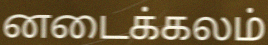
னடைக்கலம்